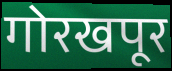
गोरखपूर